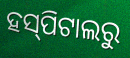
ହସ୍‍ପିଟାଲରୁ